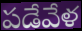
పడేవేళ